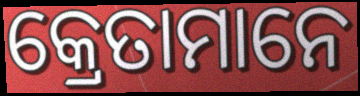
କ୍ରେତାମାନେ